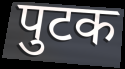
पुटक